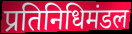
प्रतिनिधिमंडल